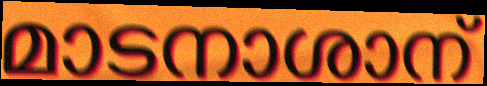
മാടനാശാന്